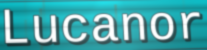
Lucanor